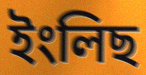
ইংলিছ